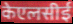
केएलसीई